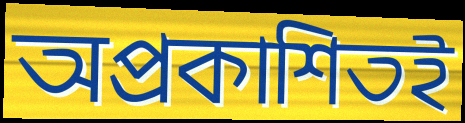
অপ্রকাশিতই